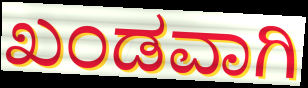
ಖಂಡವಾಗಿ